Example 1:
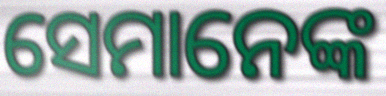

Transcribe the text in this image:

ସେମାନେଙ୍କ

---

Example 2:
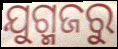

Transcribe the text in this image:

ଯୁଗ୍ମଜରୁ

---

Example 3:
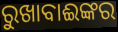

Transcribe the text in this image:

ରୁଖାବାଈଙ୍କର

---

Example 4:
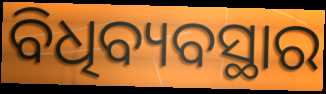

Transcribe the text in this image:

ବିଧିବ୍ୟବସ୍ଥାର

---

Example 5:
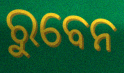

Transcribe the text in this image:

ରୁବେନ